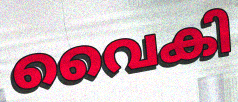
വൈകി